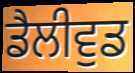
ਡੈਲੀਵੁਡ